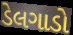
ડેલગાડો